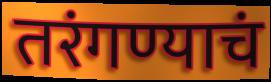
तरंगण्याचं